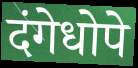
दंगेधोपे